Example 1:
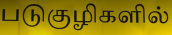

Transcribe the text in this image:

படுகுழிகளில்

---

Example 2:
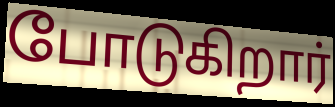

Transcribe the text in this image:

போடுகிறார்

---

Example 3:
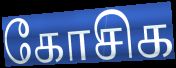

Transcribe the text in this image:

கோசிக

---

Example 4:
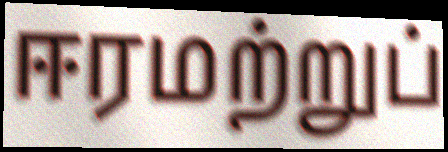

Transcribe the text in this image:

ஈரமற்றுப்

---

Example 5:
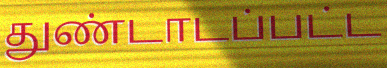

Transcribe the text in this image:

துண்டாடப்பட்ட